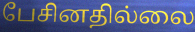
பேசினதில்லை